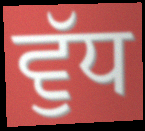
ਵੁੱਧ